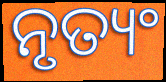
ନୃତ୍ୟଂ